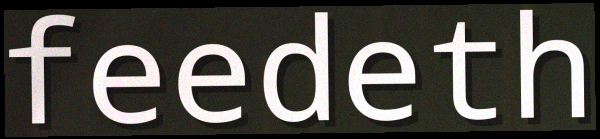
feedeth